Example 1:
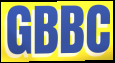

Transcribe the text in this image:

GBBC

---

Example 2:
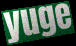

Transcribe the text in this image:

yuge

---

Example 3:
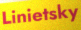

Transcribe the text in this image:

Linietsky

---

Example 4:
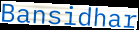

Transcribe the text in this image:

Bansidhar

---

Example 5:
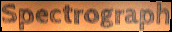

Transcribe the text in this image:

Spectrograph